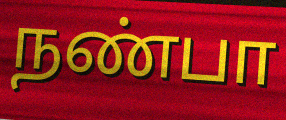
நண்பா